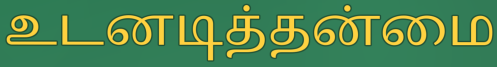
உடனடித்தன்மை